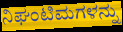
ನಿಘಂಟಿಮಗಳನ್ನು